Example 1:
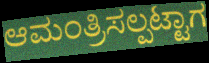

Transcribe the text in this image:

ಆಮಂತ್ರಿಸಲ್ಪಟ್ಟಾಗ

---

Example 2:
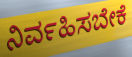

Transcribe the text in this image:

ನಿರ್ವಹಿಸಬೇಕೆ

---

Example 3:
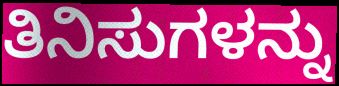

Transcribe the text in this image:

ತಿನಿಸುಗಳನ್ನು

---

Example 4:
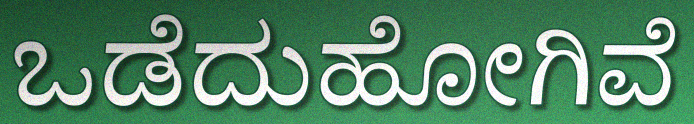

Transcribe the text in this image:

ಒಡೆದುಹೋಗಿವೆ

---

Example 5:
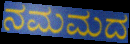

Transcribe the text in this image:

ನಮಮದ